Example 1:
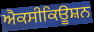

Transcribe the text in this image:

ਐਕਸੀਕਿਊਸ਼ਨ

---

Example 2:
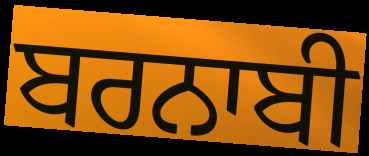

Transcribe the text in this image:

ਬਰਨਾਬੀ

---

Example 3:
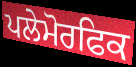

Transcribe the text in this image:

ਪਲੇਮੋਰਫਿਕ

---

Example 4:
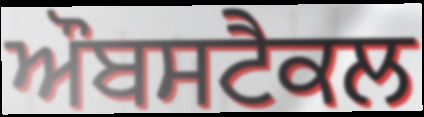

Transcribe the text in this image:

ਔਬਸਟੈਕਲ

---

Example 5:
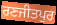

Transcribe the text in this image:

ਰਣਜੀਤਪੁਰ